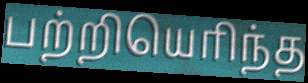
பற்றியெரிந்த